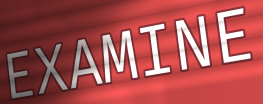
EXAMINE